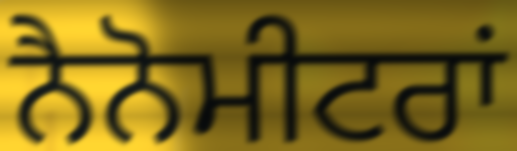
ਨੈਨੋਮੀਟਰਾਂ